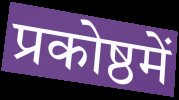
प्रकोष्ठमें